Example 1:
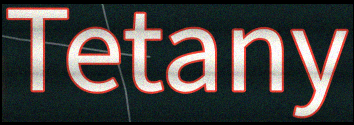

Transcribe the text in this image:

Tetany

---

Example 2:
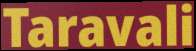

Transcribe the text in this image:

Taravali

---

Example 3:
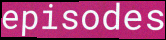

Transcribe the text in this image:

episodes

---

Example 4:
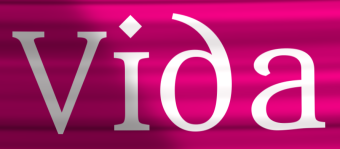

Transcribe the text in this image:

Vida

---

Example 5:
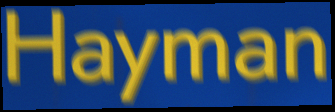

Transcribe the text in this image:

Hayman